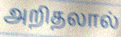
அறிதலால்